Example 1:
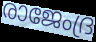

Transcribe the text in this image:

രാജേംദ്ര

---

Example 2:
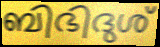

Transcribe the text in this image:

ബിഭിദുശ്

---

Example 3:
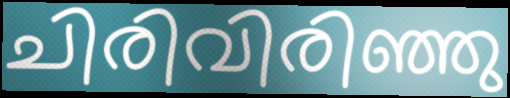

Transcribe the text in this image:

ചിരിവിരിഞ്ഞു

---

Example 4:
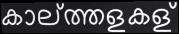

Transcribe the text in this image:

കാല്ത്തളകള്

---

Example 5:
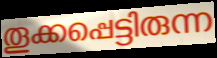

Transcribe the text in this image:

തൂക്കപ്പെട്ടിരുന്ന